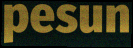
pesun